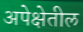
अपेक्षेतील